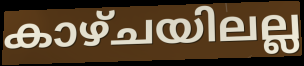
കാഴ്ചയിലല്ല